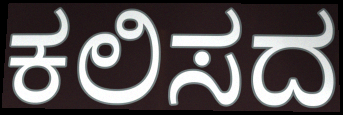
ಕಲಿಸದ